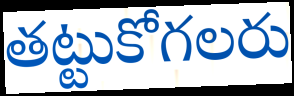
తట్టుకోగలరు